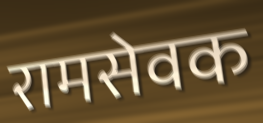
रामसेवक